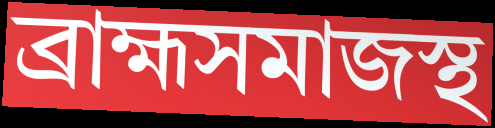
ব্রাহ্মসমাজস্থ